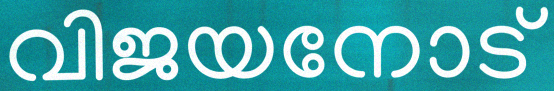
വിജയനോട്